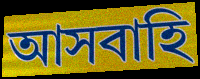
আসবাহি